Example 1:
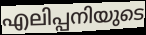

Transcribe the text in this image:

എലിപ്പനിയുടെ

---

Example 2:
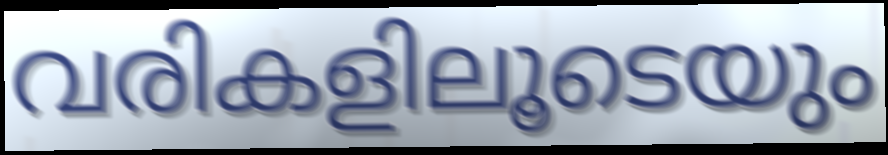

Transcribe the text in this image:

വരികളിലൂടെയും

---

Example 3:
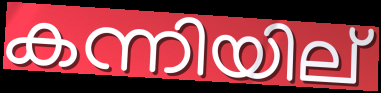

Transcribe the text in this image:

കന്നിയില്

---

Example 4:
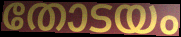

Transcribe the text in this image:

തോടയം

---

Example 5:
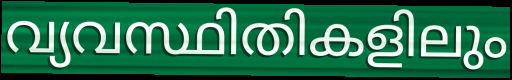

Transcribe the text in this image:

വ്യവസ്ഥിതികളിലും